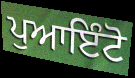
ਪੁਆਇੰਟੋ